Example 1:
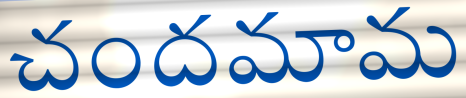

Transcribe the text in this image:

చందమామ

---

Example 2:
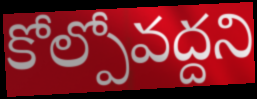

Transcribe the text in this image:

కోల్పోవద్దని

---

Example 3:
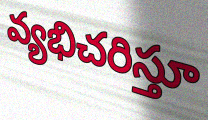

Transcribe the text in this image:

వ్యభిచరిస్తూ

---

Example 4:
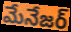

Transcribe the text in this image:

మేనేజర్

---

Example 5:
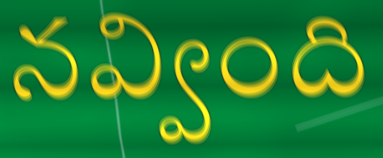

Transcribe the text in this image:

నవ్వింది